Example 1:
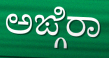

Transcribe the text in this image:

ಅಙ್ಗಿರಾ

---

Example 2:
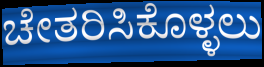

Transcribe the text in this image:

ಚೇತರಿಸಿಕೊಳ್ಳಲು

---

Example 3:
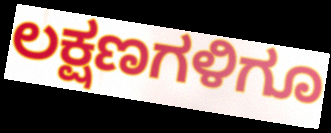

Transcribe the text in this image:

ಲಕ್ಷಣಗಳಿಗೂ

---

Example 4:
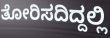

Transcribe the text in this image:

ತೋರಿಸದಿದ್ದಲ್ಲಿ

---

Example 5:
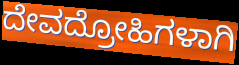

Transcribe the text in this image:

ದೇವದ್ರೋಹಿಗಳಾಗಿ